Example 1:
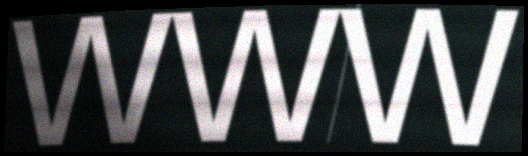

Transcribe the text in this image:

www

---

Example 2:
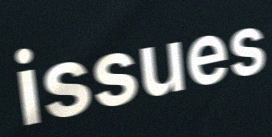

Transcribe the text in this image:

issues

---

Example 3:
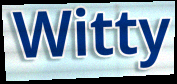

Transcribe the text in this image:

Witty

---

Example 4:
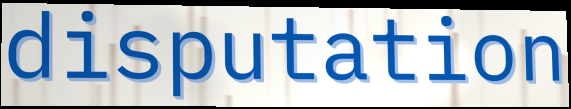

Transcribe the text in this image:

disputation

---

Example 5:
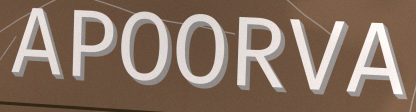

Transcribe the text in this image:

APOORVA